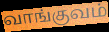
வாங்குவம்